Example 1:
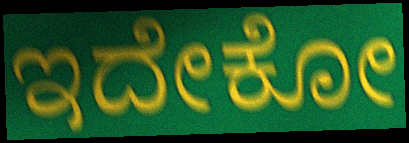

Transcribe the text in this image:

ಇದೇಕೋ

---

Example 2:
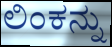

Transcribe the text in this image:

ಲಿಂಕನ್ನು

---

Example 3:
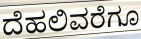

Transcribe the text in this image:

ದೆಹಲಿವರೆಗೂ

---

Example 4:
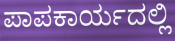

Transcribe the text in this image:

ಪಾಪಕಾರ್ಯದಲ್ಲಿ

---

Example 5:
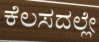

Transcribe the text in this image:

ಕೆಲಸದಲ್ಲೇ